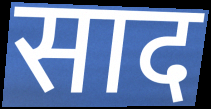
साद